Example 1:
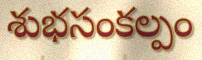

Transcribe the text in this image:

శుభసంకల్పం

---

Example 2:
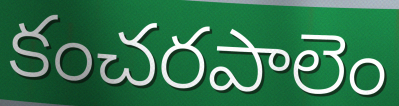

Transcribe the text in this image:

కంచరపాలెం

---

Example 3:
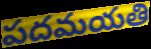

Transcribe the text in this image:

పదమయతి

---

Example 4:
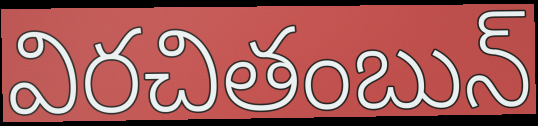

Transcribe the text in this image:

విరచితంబున్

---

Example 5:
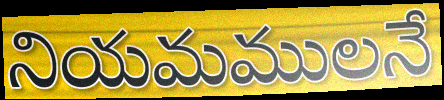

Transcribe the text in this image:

నియమములనే